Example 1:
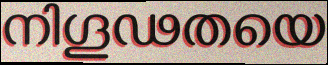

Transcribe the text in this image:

നിഗൂഢതയെ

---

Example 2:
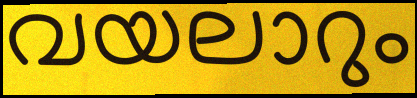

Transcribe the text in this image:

വയലാറും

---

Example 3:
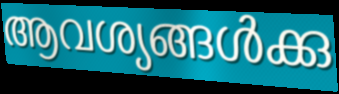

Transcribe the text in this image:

ആവശ്യങ്ങൾക്കു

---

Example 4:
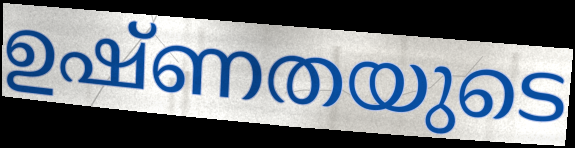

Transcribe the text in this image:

ഉഷ്ണതയുടെ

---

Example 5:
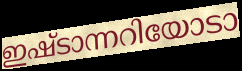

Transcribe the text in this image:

ഇഷ്ടാന്നറിയോടാ